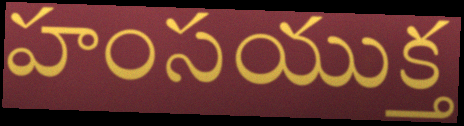
హంసయుక్త